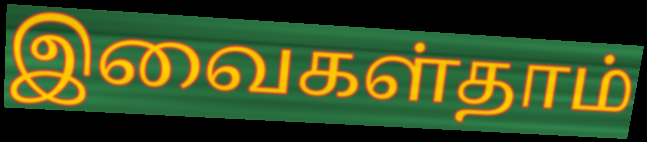
இவைகள்தாம்